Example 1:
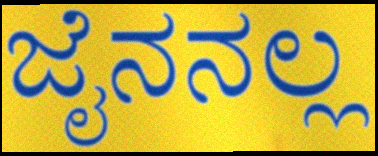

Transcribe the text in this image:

ಜೈನನಲ್ಲ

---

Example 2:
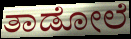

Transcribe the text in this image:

ತಾಡೋಲೆ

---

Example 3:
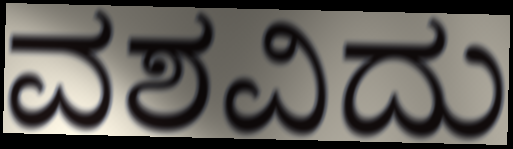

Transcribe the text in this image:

ವಶವಿದು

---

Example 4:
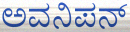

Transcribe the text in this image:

ಅವನಿಪನ್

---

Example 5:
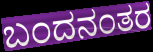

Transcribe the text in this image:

ಬಂದನಂತರ